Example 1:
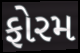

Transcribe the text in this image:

ફોરમ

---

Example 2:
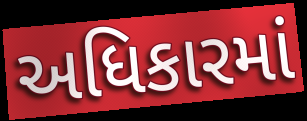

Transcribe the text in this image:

અધિકારમાં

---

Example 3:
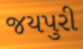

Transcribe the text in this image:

જયપુરી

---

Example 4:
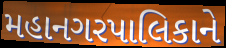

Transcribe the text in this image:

મહાનગરપાલિકાને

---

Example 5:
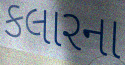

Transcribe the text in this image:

કલારના